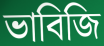
ভাবিজি